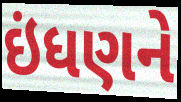
ઇંધણને